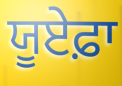
ਯੂਏਫ਼ਾ